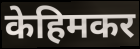
केहिमकर